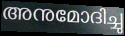
അനുമോദിച്ചു